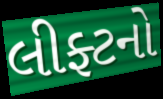
લીફ્ટનો